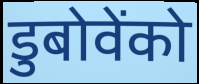
डुबोवेंको